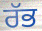
ਰੱਭ